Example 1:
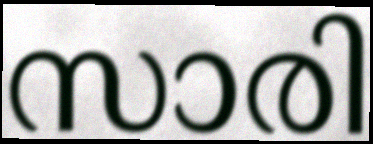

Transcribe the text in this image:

സാരി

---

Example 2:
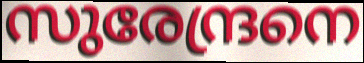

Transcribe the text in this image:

സുരേന്ദ്രനെ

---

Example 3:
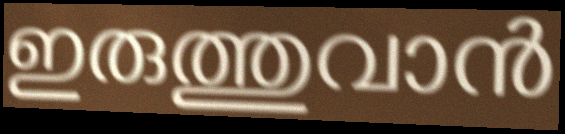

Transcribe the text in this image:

ഇരുത്തുവാൻ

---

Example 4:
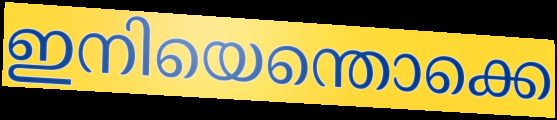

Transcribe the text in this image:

ഇനിയെന്തൊക്കെ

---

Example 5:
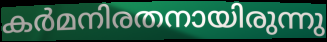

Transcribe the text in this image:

കർമനിരതനായിരുന്നു